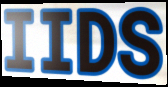
IIDS